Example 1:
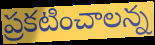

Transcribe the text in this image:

ప్రకటించాలన్న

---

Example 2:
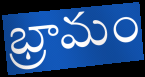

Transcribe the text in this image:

భ్రామం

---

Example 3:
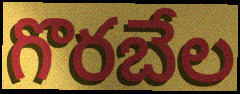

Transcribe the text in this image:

గొరబేల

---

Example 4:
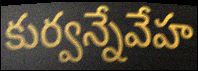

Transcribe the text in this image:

కుర్వన్నేవేహ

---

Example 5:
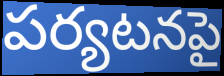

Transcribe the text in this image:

పర్యటనపై